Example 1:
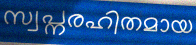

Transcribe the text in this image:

സ്വപ്നരഹിതമായ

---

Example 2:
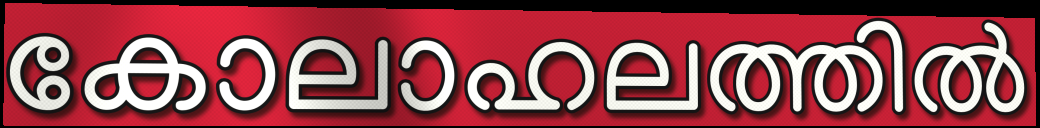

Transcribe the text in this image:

കോലാഹലത്തിൽ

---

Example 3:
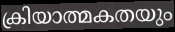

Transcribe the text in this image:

ക്രിയാത്മകതയും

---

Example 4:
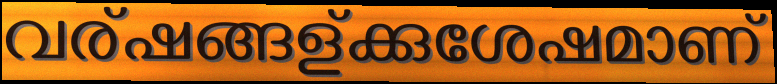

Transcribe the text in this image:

വര്ഷങ്ങള്ക്കുശേഷമാണ്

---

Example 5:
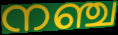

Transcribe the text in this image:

നഞ്ച